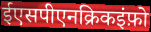
ईएसपीएनक्रिकइंफ़ो